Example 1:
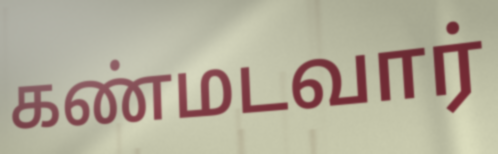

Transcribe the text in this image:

கண்மடவார்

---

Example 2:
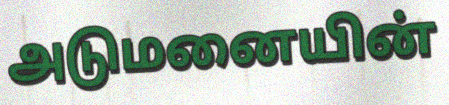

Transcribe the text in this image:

அடுமனையின்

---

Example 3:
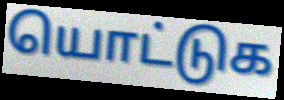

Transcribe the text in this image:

யொட்டுக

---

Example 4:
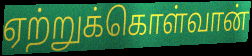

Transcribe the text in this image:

ஏற்றுக்கொள்வான்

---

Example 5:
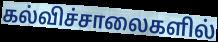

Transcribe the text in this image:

கல்விச்சாலைகளில்